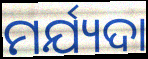
ମର୍ଯ୍ୟଦା